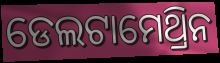
ଡେଲଟାମେଥ୍ରିନ